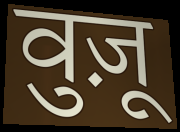
वुज़ू